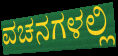
ವಚನಗಳಲ್ಲಿ